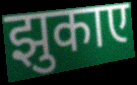
झुकाए